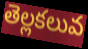
తెల్లకలువ